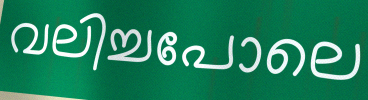
വലിച്ചപോലെ